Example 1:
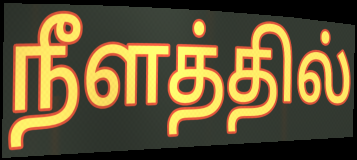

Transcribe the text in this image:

நீளத்தில்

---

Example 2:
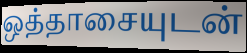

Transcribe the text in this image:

ஒத்தாசையுடன்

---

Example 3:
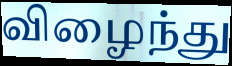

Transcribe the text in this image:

விழைந்து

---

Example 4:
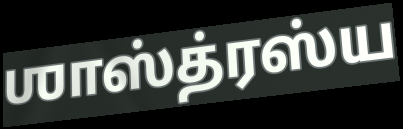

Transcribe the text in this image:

ஶாஸ்த்ரஸ்ய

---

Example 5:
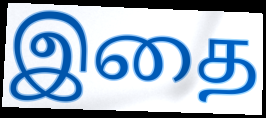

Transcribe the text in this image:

இதை